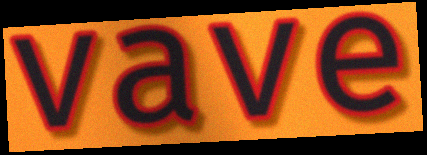
vave